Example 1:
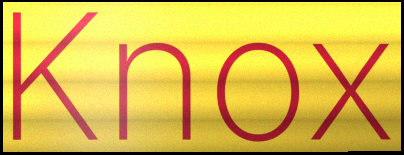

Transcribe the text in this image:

Knox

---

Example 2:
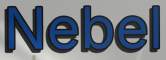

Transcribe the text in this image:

Nebel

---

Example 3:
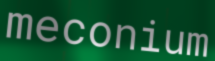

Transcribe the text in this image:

meconium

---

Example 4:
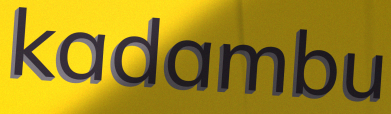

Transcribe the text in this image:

kadambu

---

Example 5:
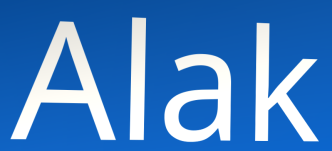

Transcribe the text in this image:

Alak